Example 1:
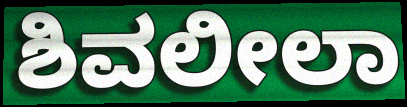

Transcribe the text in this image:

ಶಿವಲೀಲಾ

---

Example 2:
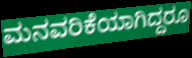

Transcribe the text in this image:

ಮನವರಿಕೆಯಾಗಿದ್ದರೂ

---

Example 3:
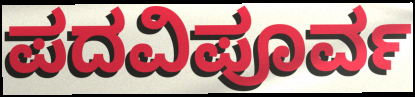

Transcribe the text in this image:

ಪದವಿಪೂರ್ವ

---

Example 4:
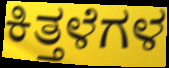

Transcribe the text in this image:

ಕಿತ್ತಳೆಗಳ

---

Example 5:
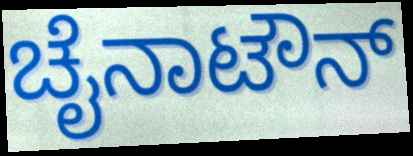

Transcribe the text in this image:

ಚೈನಾಟೌನ್